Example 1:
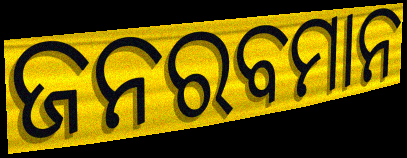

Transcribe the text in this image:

ଜନରବମାନ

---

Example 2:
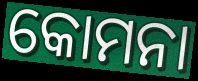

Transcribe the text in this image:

କୋମନା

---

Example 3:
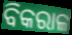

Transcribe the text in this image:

ବିକରାଳ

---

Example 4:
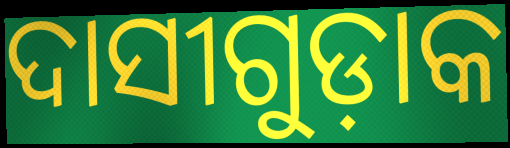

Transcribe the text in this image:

ଦାସୀଗୁଡ଼ାକ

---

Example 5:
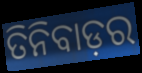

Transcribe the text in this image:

ତିନିବାଡ଼ର